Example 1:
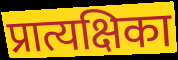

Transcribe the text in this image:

प्रात्यक्षिका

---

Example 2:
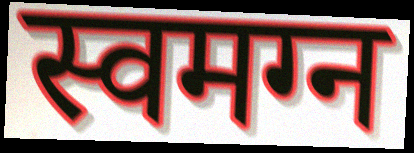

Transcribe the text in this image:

स्वमग्न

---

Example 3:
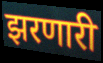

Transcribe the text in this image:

झरणारी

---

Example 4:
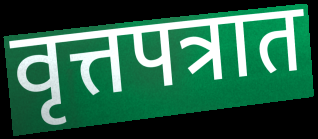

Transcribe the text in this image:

वृत्तपत्रात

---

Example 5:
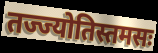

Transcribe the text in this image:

तज्ज्योतिस्तमसः